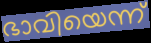
ഭാവിയെന്ന്